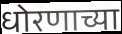
धोरणाच्या